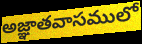
అజ్ఞాతవాసములో